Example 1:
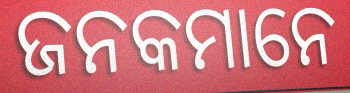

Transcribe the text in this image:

ଜନକମାନେ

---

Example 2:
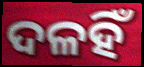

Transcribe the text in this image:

ଦଳହିଁ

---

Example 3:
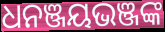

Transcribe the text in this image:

ଧନଞ୍ଜୟଭଞ୍ଜଙ୍କ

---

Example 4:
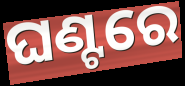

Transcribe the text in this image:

ଘଣ୍ଟରେ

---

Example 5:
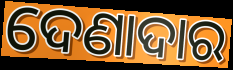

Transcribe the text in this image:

ଦେଣାଦାର